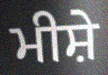
ਮੀਸ਼ੇ